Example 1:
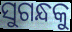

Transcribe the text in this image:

ସୁଗନ୍ଧକୁ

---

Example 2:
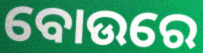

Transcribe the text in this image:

ବୋଉରେ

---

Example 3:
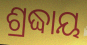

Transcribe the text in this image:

ଶ୍ରଦ୍ଧାୟ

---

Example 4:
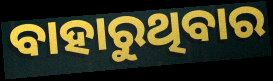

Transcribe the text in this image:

ବାହାରୁଥିବାର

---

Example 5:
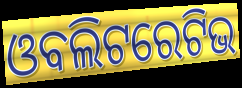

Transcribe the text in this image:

ଓବଲିଟରେଟିଭ